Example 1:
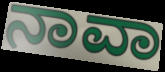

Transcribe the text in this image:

ನಾವಾ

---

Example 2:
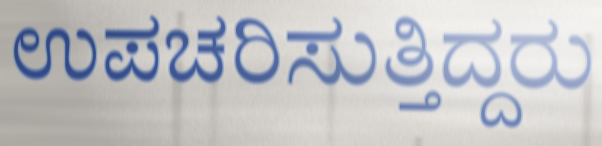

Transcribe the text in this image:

ಉಪಚರಿಸುತ್ತಿದ್ದರು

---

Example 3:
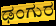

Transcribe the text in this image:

ಢಂಗುರ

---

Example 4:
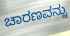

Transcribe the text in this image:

ಚಾರಣವನ್ನು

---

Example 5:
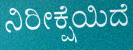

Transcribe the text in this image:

ನಿರೀಕ್ಷೆಯಿದೆ